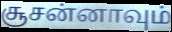
சூசன்னாவும்